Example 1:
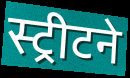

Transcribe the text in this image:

स्ट्रीटने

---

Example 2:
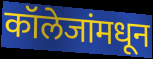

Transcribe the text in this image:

कॉलेजांमधून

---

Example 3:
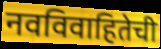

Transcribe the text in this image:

नवविवाहितेची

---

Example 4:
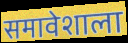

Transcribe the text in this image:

समावेशाला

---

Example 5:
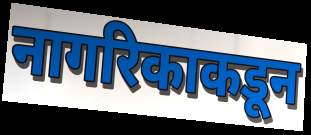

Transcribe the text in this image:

नागरिकाकडून